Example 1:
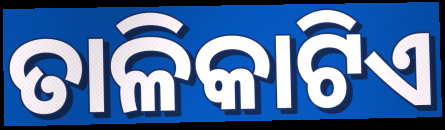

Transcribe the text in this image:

ତାଳିକାଟିଏ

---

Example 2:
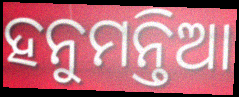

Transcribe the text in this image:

ହନୁମନ୍ତିଆ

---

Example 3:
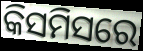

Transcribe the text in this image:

କିସମିସରେ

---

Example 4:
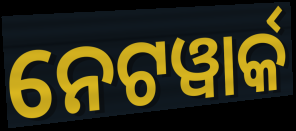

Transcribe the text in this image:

ନେଟୱାର୍କ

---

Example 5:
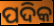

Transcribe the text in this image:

ପଦିକ